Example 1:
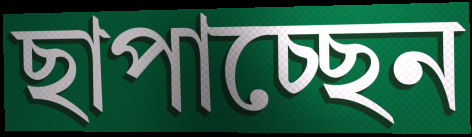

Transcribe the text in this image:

ছাপাচ্ছেন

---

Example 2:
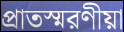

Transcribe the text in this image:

প্রাতস্মরণীয়া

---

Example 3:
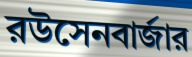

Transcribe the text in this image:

রউসেনবার্জার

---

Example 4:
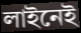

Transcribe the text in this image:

লাইনেই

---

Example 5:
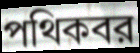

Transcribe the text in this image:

পথিকবর